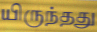
யிருந்தது